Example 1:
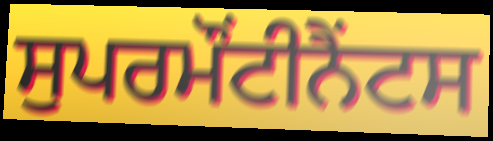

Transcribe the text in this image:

ਸੁਪਰਮੌਂਟੀਨੈਂਟਸ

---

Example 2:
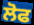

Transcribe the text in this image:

ਲੋਫ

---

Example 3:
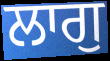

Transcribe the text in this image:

ਲਾਗੁ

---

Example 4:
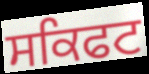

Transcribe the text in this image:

ਸਕਿਫਟ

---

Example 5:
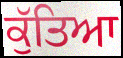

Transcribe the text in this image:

ਕੁੱਤਿਆ